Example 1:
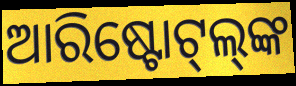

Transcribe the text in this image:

ଆରିଷ୍ଟୋଟ୍‌ଲ୍‌ଙ୍କ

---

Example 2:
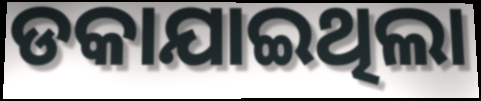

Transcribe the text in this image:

ଡକାଯାଇଥିଲା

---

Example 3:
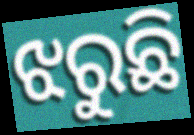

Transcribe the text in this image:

ଝରୁଛି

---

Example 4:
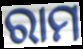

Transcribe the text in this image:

ରାମ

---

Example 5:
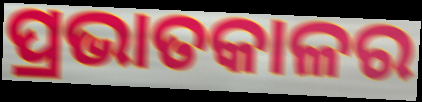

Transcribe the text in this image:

ପ୍ରଭାତକାଳର